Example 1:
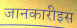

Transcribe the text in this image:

जानकारीइस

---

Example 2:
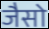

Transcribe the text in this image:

जैसो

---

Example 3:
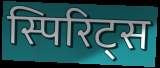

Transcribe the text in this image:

स्पिरिट्स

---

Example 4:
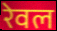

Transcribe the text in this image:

रेवल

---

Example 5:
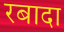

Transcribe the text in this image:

रबादा